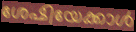
ശേഷിയേക്കാൾ